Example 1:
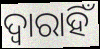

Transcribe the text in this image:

ଦ୍ୱାରାହିଁ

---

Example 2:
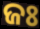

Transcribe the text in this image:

ଜଃ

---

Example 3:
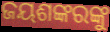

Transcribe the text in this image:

ଜୟଶଙ୍କରଙ୍କୁ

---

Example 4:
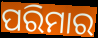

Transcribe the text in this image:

ପରିମାର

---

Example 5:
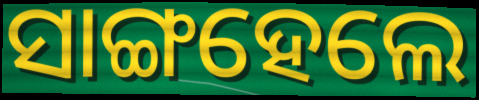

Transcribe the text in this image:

ସାଙ୍ଗହେଲେ